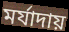
মর্যাদায়